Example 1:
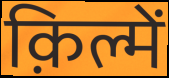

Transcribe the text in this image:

क़िल्में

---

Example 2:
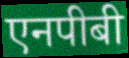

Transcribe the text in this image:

एनपीबी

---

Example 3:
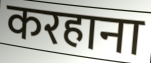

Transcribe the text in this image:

करहाना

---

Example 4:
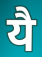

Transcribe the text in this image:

यै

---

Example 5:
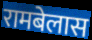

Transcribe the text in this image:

रामबेलास